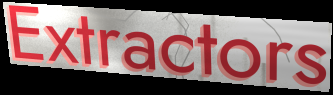
Extractors